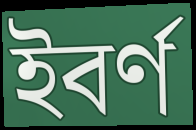
ইবৰ্ণ